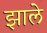
झाले